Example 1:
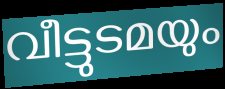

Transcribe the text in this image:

വീട്ടുടമയും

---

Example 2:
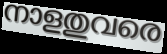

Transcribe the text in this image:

നാളതുവരെ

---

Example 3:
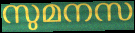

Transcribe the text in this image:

സുമനസ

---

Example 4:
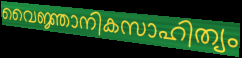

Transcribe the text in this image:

വൈജ്ഞാനികസാഹിത്യം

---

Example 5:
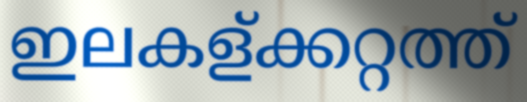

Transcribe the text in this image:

ഇലകള്ക്കറ്റത്ത്